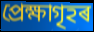
প্ৰেক্ষাগৃহৰ